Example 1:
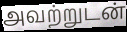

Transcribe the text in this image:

அவற்றுடன்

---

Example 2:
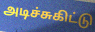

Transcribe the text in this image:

அடிச்சுகிட்டு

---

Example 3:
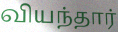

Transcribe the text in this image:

வியந்தார்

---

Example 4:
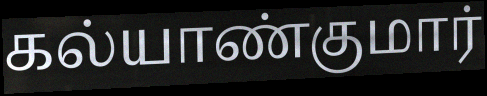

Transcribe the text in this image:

கல்யாண்குமார்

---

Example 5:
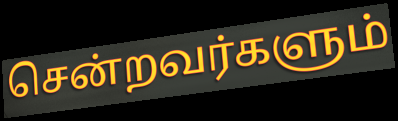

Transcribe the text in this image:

சென்றவர்களும்